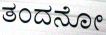
ತಂದನೋ